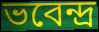
ভবেন্দ্ৰ